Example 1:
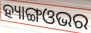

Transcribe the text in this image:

ହ୍ୟାଙ୍ଗଓଭର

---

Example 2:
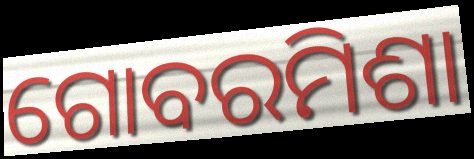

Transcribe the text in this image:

ଗୋବରମିଶା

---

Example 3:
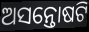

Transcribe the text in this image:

ଅସନ୍ତୋଷଟି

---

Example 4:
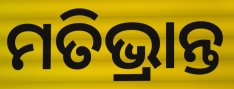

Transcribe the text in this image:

ମତିଭ୍ରାନ୍ତ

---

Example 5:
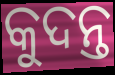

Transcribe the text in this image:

କୁଦନ୍ତ